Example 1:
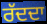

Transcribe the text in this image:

ਰੱਦਦਾ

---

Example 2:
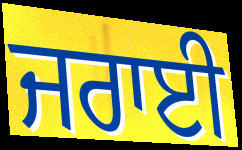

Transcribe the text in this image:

ਜਰਾਈ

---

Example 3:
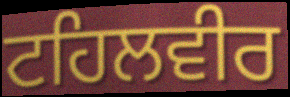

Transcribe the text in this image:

ਟਹਿਲਵੀਰ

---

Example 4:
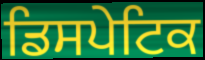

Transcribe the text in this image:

ਡਿਸਪੇਟਿਕ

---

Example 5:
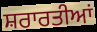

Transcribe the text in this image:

ਸ਼ਰਾਰਤੀਆਂ